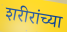
शरीरांच्या